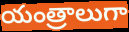
యంత్రాలుగా